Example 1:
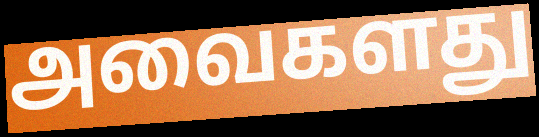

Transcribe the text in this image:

அவைகளது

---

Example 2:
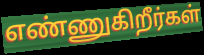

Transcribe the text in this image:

எண்ணுகிறீர்கள்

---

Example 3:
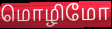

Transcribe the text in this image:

மொழிமோ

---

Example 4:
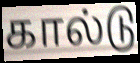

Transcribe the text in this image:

கால்டு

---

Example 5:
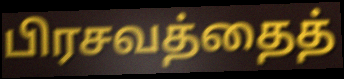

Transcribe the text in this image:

பிரசவத்தைத்